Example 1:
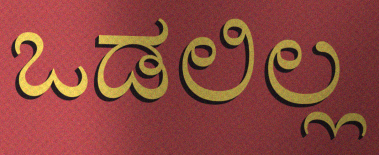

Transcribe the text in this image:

ಒಡಲಿಲ್ಲ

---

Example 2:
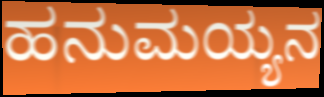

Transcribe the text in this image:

ಹನುಮಯ್ಯನ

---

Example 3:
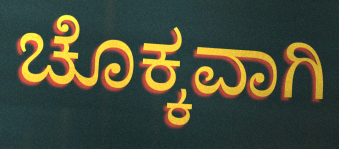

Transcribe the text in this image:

ಚೊಕ್ಕವಾಗಿ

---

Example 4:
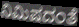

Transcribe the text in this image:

ನಿಮಿಷದಂತೆ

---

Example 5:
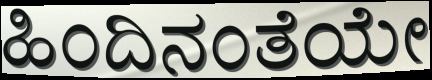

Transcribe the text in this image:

ಹಿಂದಿನಂತೆಯೇ